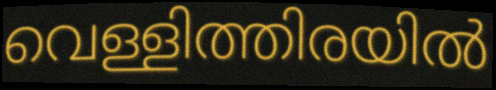
വെള്ളിത്തിരയിൽ